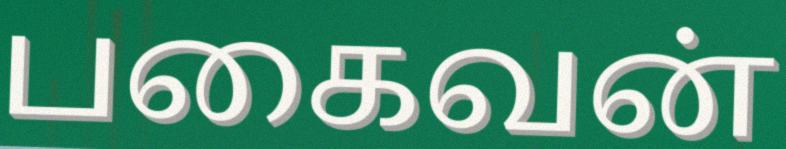
பகைவன்